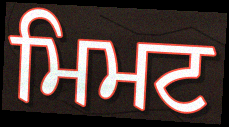
ਮਿਮਟ